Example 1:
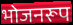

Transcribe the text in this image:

भोजनरूप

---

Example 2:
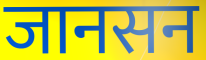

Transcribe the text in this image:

जानसन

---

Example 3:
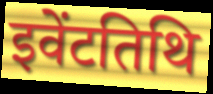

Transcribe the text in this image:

इवेंटतिथि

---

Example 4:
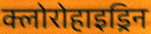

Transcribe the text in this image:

क्लोरोहाइड्रिन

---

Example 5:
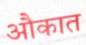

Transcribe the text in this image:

औकात